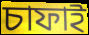
চাফাই